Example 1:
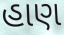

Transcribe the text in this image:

હાણ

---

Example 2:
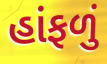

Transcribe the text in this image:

હાંફળું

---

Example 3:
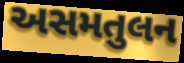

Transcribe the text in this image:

અસમતુલન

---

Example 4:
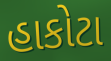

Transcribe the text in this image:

હાકોટા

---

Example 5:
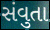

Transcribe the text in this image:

સંવુતા